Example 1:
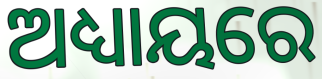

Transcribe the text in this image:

ଅଧ୍ୟାୟରେ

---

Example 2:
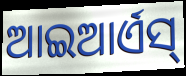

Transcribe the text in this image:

ଆଇଆର୍ଏସ୍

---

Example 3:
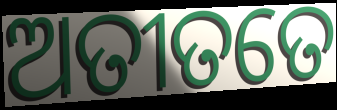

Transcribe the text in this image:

ଅତୀତତେ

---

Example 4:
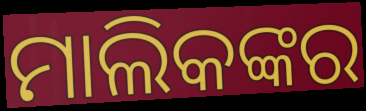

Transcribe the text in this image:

ମାଲିକଙ୍କର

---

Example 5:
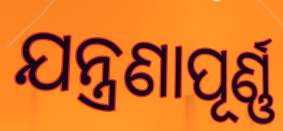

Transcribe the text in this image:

ଯନ୍ତ୍ରଣାପୂର୍ଣ୍ଣ